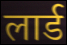
लार्ड